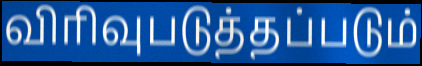
விரிவுபடுத்தப்படும்